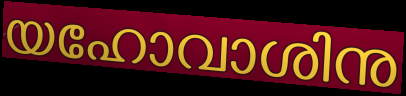
യഹോവാശിനു